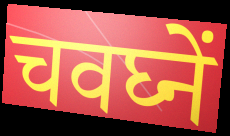
चवघ्नें